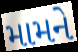
મામને